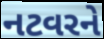
નટવરને